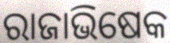
ରାଜାଭିଷେକ